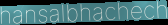
hansalbhachech